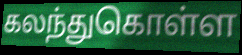
கலந்துகொள்ள